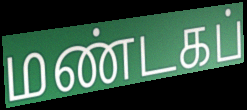
மண்டகப்